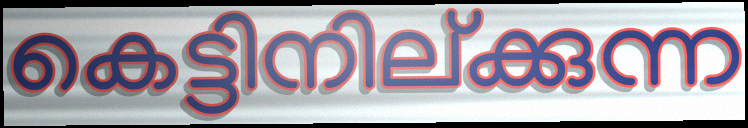
കെട്ടിനില്ക്കുന്ന